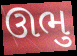
ઊભુ